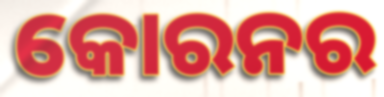
କୋରନର